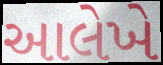
આલેખે